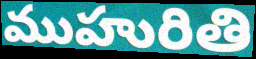
ముహురితి